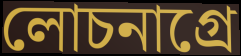
লোচনাগ্রে